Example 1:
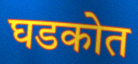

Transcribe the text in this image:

घडकोत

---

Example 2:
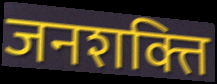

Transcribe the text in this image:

जनशक्ति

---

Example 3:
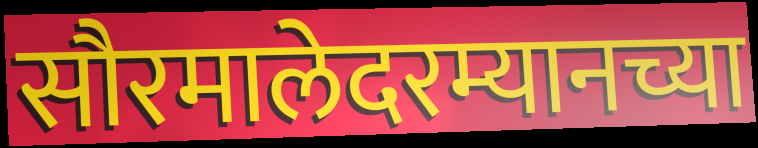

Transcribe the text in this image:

सौरमालेदरम्यानच्या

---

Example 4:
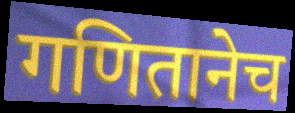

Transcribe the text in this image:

गणितानेच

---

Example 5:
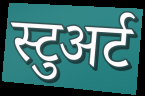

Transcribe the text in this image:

स्टुअर्ट